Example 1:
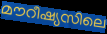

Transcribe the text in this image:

മൗറീഷ്യസിലെ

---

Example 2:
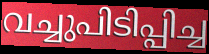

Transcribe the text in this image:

വച്ചുപിടിപ്പിച്ച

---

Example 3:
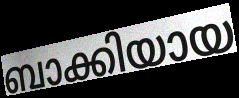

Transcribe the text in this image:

ബാക്കിയായ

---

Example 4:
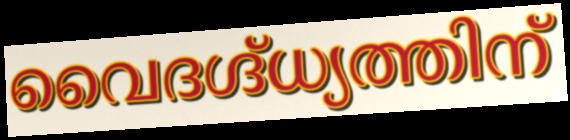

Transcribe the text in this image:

വൈദഗ്ദ്ധ്യത്തിന്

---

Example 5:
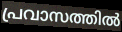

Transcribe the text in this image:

പ്രവാസത്തിൽ